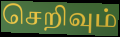
செறிவும்